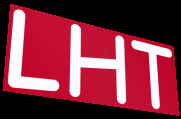
LHT